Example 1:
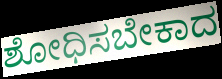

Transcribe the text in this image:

ಶೋಧಿಸಬೇಕಾದ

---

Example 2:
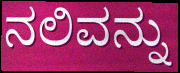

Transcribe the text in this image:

ನಲಿವನ್ನು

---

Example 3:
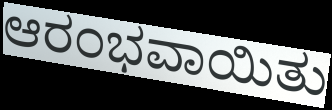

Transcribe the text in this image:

ಆರಂಭವಾಯಿತು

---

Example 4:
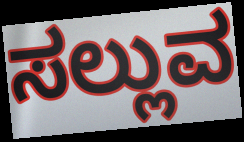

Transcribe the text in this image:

ಸಲ್ಲುವ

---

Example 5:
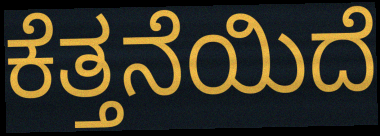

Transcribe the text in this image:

ಕೆತ್ತನೆಯಿದೆ